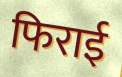
फिराई